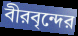
বীরবৃন্দের